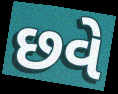
છવે